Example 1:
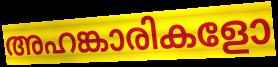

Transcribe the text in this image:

അഹങ്കാരികളോ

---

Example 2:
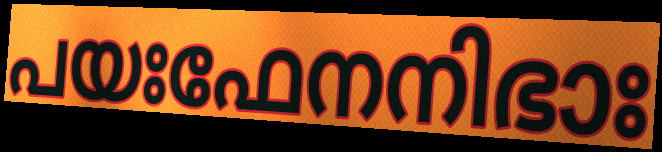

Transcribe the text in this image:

പയഃഫേനനിഭാഃ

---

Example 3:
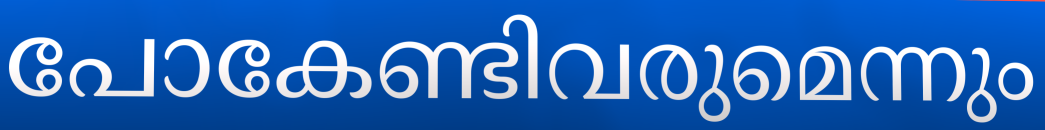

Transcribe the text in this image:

പോകേണ്ടിവരുമെന്നും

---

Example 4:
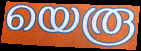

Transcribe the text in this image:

യെരൂ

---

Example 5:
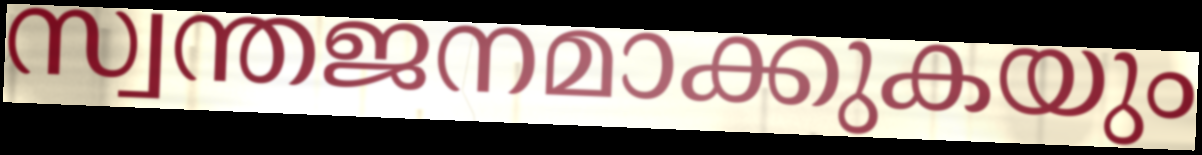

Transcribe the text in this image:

സ്വന്തജനമാക്കുകയും